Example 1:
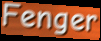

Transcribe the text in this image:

Fenger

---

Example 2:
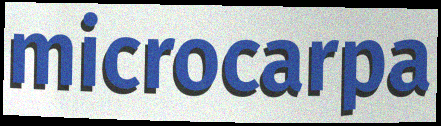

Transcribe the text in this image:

microcarpa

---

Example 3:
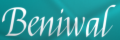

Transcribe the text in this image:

Beniwal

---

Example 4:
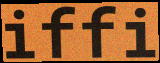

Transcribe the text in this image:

iffi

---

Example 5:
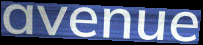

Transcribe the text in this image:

avenue